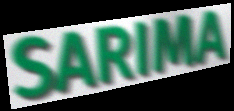
SARIMA